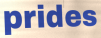
prides